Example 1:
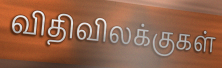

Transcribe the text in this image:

விதிவிலக்குகள்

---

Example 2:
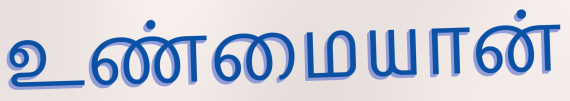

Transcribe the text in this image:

உண்மையான்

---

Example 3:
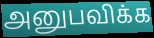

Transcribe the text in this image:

அனுபவிக்க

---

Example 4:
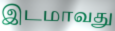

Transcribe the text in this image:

இடமாவது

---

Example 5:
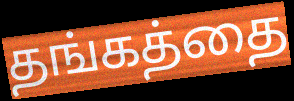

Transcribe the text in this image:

தங்கத்தை